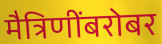
मैत्रिणींबरोबर